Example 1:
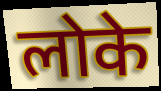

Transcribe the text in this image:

लोके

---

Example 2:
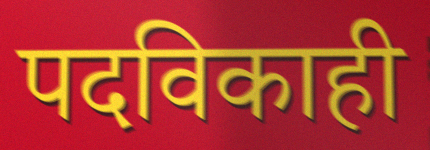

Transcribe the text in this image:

पदविकाही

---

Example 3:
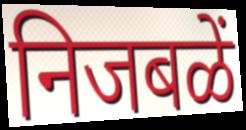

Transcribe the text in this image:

निजबळें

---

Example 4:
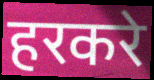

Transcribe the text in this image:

हरकरे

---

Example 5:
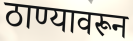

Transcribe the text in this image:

ठाण्यावरून